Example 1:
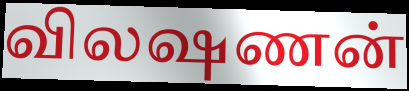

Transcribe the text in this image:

விலஷணன்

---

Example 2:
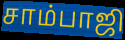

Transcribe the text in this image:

சாம்பாஜி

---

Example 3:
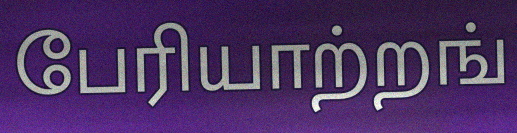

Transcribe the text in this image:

பேரியாற்றங்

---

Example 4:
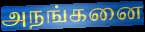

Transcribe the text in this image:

அநங்கனை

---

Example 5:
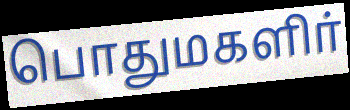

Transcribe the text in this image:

பொதுமகளிர்